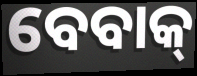
ବେବାକ୍